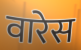
वारेस